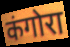
कंगोरा